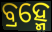
ବ୍ରହ୍ମେ